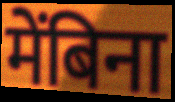
मेंबिना